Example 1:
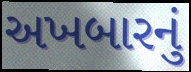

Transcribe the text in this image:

અખબારનું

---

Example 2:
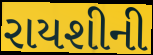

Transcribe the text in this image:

રાયશીની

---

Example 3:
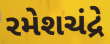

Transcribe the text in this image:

રમેશચંદ્રે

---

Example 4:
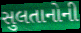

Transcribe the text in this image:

સુલતાનોની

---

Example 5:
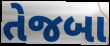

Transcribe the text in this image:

તેજબા